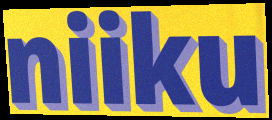
niiku